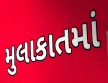
મુલાકાતમાં